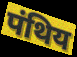
पंथिय